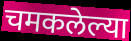
चमकलेल्या